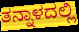
ತನ್ನಾಳದಲ್ಲಿ